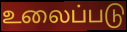
உலைப்படு